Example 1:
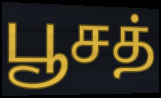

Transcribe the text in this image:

பூசத்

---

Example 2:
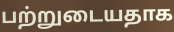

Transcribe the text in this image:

பற்றுடையதாக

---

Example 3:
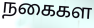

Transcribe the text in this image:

நகைகள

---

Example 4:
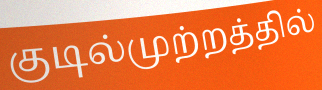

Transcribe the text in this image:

குடில்முற்றத்தில்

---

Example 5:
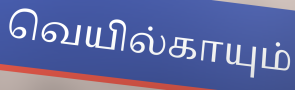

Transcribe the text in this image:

வெயில்காயும்